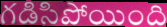
గడిసిపోయింది